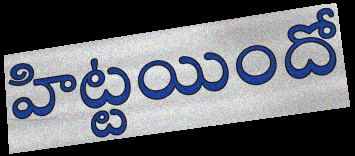
హిట్టయిందో